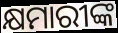
କ୍ଷମାରୀଙ୍କ